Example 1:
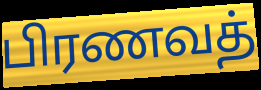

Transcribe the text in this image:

பிரணவத்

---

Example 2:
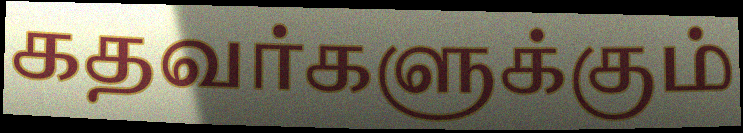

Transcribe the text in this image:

கதவர்களுக்கும்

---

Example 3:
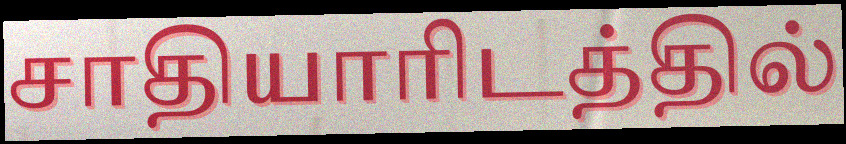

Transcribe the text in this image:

சாதியாரிடத்தில்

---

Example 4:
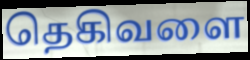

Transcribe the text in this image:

தெகிவளை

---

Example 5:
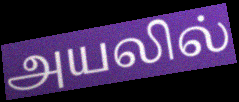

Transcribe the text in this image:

அயலில்